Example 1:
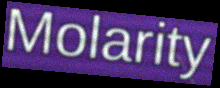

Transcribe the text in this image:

Molarity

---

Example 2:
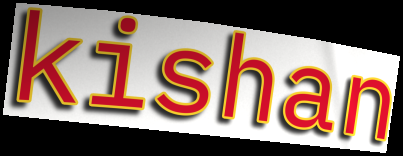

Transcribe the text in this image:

kishan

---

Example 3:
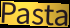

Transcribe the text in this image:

Pasta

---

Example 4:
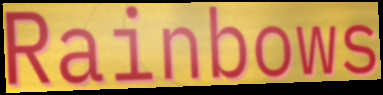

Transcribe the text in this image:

Rainbows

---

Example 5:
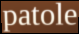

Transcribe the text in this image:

patole